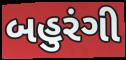
બહુરંગી